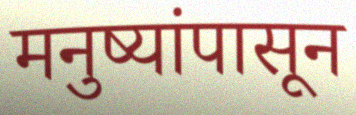
मनुष्यांपासून